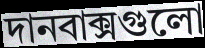
দানবাক্সগুলো